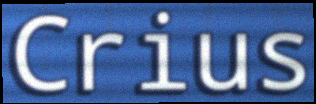
Crius